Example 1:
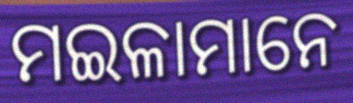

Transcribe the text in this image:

ମଇଳାମାନେ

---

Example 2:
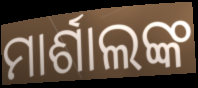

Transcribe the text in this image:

ମାର୍ଶାଲଙ୍କ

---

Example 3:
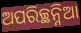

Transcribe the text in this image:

ଅପରିଚ୍ଛନ୍ନିଆ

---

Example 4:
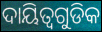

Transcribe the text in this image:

ଦାୟିତ୍ୱଗୁଡିକ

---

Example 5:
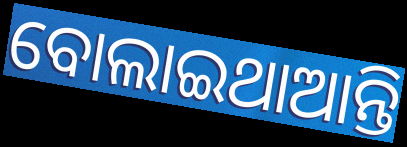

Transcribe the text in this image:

ବୋଲାଇଥାଆନ୍ତି